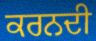
ਕਰਨਦੀ